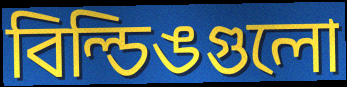
বিল্ডিঙগুলো